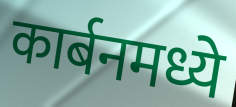
कार्बनमध्ये